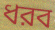
ধরব